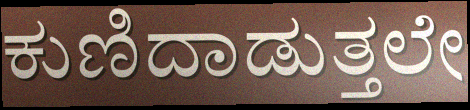
ಕುಣಿದಾಡುತ್ತಲೇ